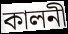
কালনী